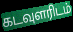
கடவுளரிடம்